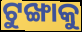
ଟୁଙ୍ଖାକୁ